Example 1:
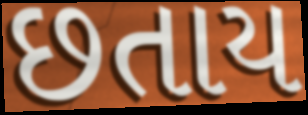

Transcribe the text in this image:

છતાય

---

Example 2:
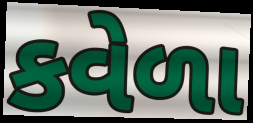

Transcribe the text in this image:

કવેળા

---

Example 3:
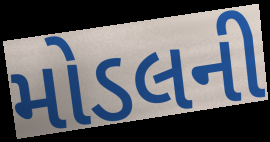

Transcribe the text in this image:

મોડલની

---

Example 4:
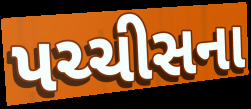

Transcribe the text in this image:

પચ્ચીસના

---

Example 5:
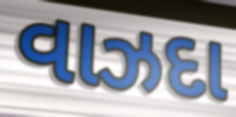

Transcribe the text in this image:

વાઝદા